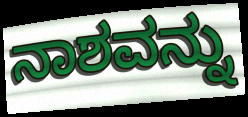
ನಾಶವನ್ನು